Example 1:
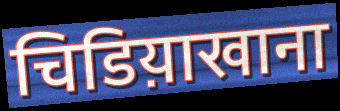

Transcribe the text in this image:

चिडिय़ाखाना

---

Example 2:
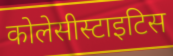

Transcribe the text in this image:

कोलेसीस्टाइटिस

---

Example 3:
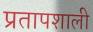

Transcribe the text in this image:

प्रतापशाली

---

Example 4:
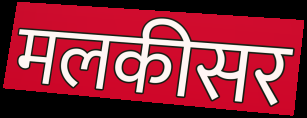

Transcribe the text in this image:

मलकीसर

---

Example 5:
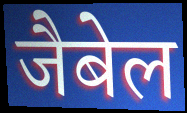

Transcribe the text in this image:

जैबेल